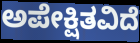
ಅಪೇಕ್ಷಿತವಿದೆ